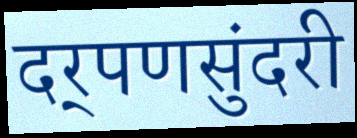
दर्पणसुंदरी